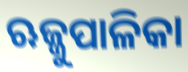
ଋଜ୍ଜୁପାଳିକା